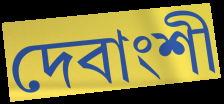
দেবাংশী